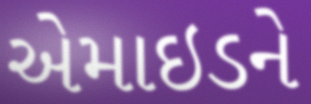
એમાઇડને